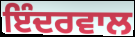
ਇੰਦਰਵਾਲ